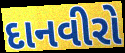
દાનવીરો